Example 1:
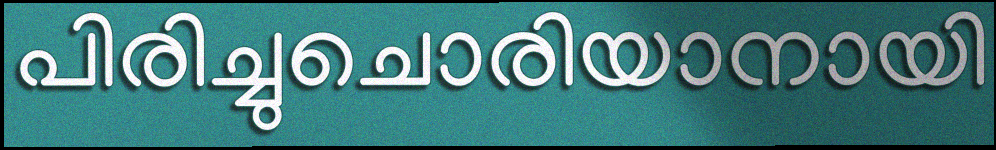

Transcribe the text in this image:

പിരിച്ചുചൊരിയാനായി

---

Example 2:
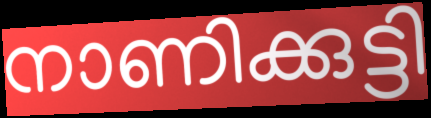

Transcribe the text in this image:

നാണിക്കുട്ടി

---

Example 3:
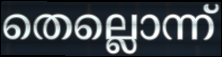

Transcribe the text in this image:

തെല്ലൊന്ന്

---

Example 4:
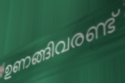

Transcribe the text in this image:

ഉണങ്ങിവരണ്ട്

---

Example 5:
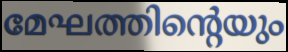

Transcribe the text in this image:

മേഘത്തിന്റെയും